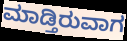
ಮಾಡ್ತಿರುವಾಗ